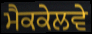
ਮੈਕਕੇਲਵੇ